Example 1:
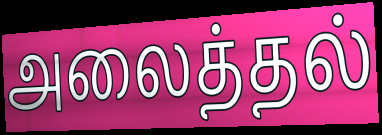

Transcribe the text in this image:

அலைத்தல்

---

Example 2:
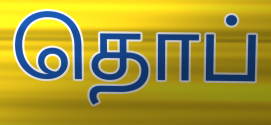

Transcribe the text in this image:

தொப்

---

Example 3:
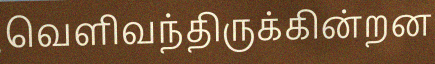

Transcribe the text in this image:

வெளிவந்திருக்கின்றன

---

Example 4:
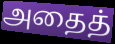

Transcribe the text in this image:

அதைத்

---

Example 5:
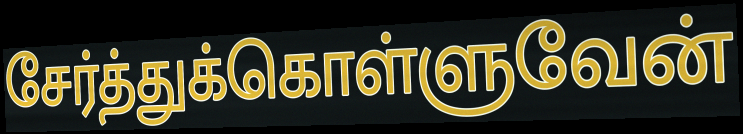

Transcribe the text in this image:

சேர்த்துக்கொள்ளுவேன்